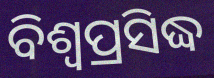
ବିଶ୍ଵପ୍ରସିଦ୍ଧ